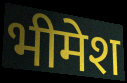
भीमेश